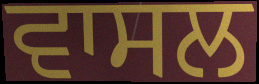
ਵਾਸਲ